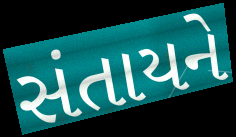
સંતાયને